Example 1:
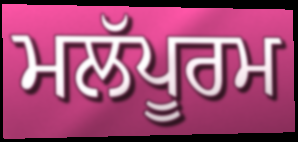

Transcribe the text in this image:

ਮਲੱਪੂਰਮ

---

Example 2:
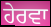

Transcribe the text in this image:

ਹੇਰਵਾ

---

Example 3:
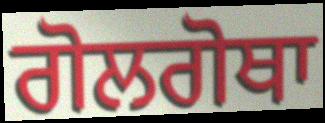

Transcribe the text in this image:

ਗੋਲਗੋਥਾ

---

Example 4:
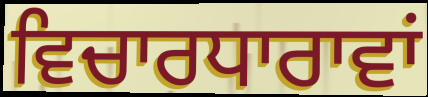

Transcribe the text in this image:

ਵਿਚਾਰਧਾਰਾਵਾਂ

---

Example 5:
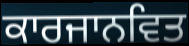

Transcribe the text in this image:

ਕਾਰਜਾਨਵਿਤ